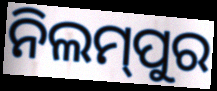
ନିଲମ୍‍ପୁର